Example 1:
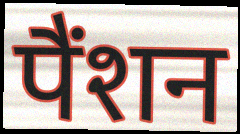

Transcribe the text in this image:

पैंशन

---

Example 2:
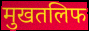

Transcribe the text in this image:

मुखतलिफ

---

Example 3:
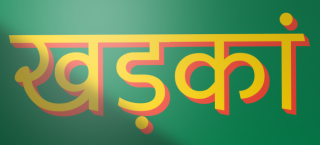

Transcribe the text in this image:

खड़कां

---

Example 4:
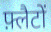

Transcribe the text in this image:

फ़्लैटों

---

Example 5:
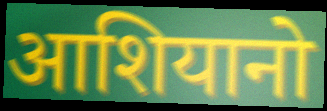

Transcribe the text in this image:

आशियानो